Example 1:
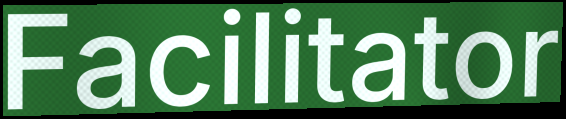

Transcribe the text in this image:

Facilitator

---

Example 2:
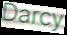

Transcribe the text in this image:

Darcy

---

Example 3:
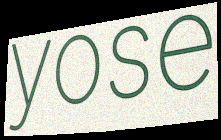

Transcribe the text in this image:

yose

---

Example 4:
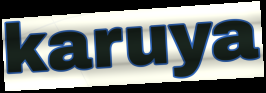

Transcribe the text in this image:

karuya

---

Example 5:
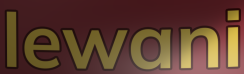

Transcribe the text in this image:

lewani